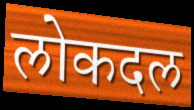
लोकदल